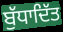
ਬੁੱਧਾਦਿੱਤ